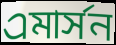
এমার্সন